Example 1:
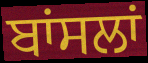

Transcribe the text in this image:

ਬਾਂਸਲਾਂ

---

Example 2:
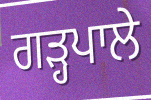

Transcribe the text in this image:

ਗੜ੍ਹਪਾਲੇ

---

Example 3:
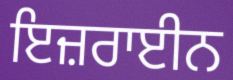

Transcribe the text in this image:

ਇਜ਼ਰਾਈਨ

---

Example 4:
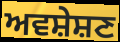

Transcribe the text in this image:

ਅਵਸ਼ੇਸ਼ਣ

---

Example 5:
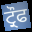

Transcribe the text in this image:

ਟ੍ਰੌਫ